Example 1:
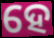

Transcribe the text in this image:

ହେ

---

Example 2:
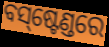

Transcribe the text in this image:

ବସ୍‌ଷ୍ଟେଣ୍ଡରେ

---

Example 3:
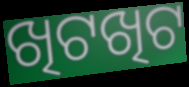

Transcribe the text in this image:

ଖିଟଖିଟ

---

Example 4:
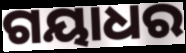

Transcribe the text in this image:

ଗୟାଧର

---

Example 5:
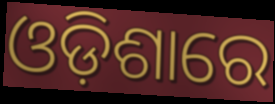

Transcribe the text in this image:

ଓଡ଼ିଶାରେ